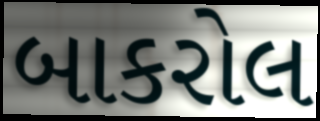
બાકરોલ